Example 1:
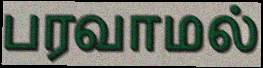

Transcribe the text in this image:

பரவாமல்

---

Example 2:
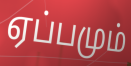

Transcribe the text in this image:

ஏப்பமும்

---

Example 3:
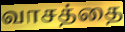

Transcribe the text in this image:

வாசத்தை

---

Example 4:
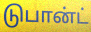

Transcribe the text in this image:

டுபான்ட்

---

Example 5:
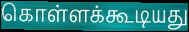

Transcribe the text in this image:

கொள்ளக்கூடியது